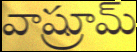
వాష్రూమ్